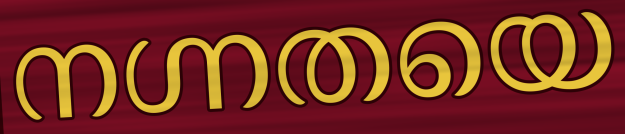
നഗ്നതയെ